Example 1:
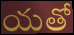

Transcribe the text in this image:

యతో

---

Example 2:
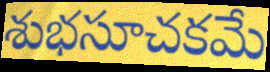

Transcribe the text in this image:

శుభసూచకమే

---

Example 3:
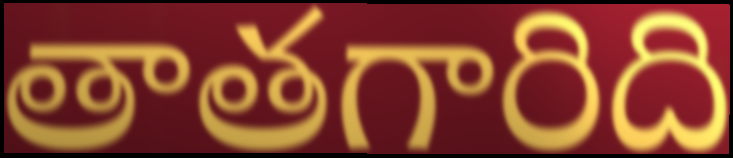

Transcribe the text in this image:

తాతగారిది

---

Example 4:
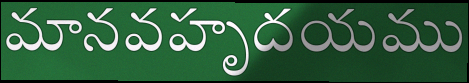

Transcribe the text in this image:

మానవహృదయము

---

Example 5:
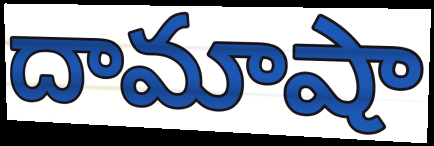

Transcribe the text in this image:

దామాషా